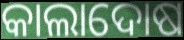
କାଲାଦୋଷ